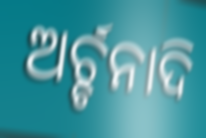
ଅର୍ଚ୍ଚନାଦି